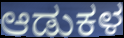
ಆಡುಕಳ